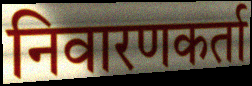
निवारणकर्ता